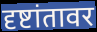
दृष्टांतावर